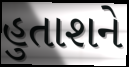
હુતાશને